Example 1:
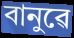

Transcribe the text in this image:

বানুৱে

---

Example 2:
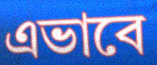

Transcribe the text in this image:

এভাবে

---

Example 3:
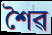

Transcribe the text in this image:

শৈৱ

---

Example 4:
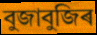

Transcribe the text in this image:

বুজাবুজিৰ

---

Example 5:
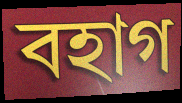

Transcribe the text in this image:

বহাগ